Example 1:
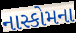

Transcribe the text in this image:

નાસ્કોમના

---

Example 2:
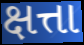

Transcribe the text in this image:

ક્ષત્તા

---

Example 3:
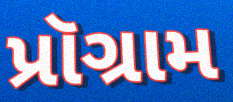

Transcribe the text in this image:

પ્રૉગ્રામ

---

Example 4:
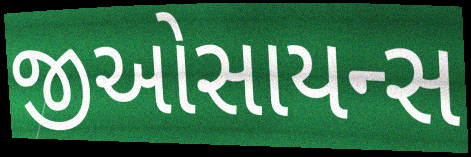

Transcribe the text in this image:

જીઓસાયન્સ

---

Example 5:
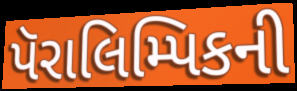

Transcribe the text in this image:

પૅરાલિમ્પિકની